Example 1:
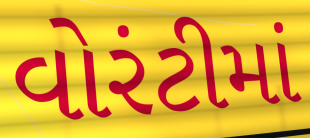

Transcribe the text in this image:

વોરંટીમાં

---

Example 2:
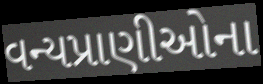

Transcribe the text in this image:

વન્યપ્રાણીઓના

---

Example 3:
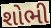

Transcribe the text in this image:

શોભી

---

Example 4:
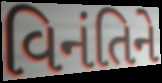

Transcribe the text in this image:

વિનંતિને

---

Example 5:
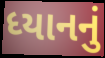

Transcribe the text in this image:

ધ્યાનનું